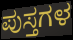
ಪುಸ್ತಗಳ